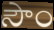
సౌం